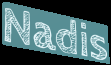
Nadis